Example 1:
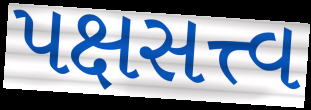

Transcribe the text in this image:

પક્ષસત્ત્વ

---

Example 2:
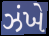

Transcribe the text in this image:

ઝંખે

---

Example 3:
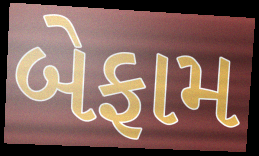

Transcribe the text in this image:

બેફામ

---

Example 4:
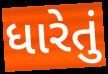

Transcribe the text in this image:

ધારેતું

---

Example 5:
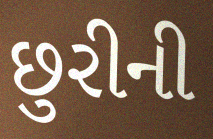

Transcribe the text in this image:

છુરીની